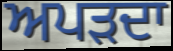
ਅਪੜਦਾ